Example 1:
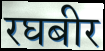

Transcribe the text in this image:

रघबीर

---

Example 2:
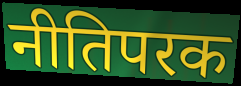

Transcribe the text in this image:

नीतिपरक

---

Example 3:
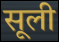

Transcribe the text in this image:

सूली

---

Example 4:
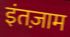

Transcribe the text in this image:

इंतज़ाम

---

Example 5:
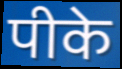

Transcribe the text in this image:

पीके